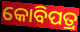
କୋବିପତ୍ର